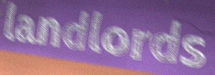
landlords